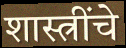
शास्त्रींचे